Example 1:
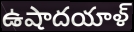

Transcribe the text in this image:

ఉషాదయాళ్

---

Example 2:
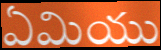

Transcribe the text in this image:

ఏమియు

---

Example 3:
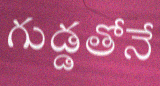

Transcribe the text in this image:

గుడ్డతోనే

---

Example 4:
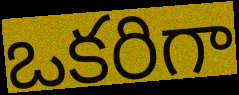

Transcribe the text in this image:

ఒకరిగా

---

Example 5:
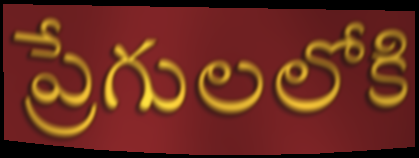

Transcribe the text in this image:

ప్రేగులలోకి